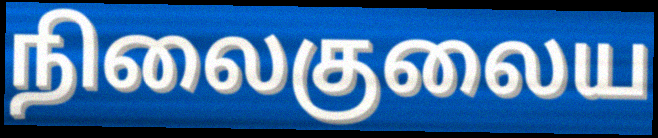
நிலைகுலைய